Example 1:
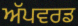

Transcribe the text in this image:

ਅੱਪਵਰਡ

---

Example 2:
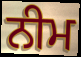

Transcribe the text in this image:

ਨੀਮ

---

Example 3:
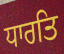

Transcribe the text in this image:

ਧਾਰਤਿ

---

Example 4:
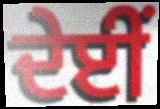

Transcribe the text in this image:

ਦੇਈਂ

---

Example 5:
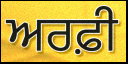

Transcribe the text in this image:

ਅਰਫ਼ੀ